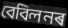
বেবিলনৰ